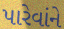
પારેવાંને